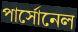
পার্সোনেল